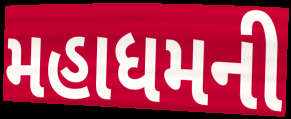
મહાધમની